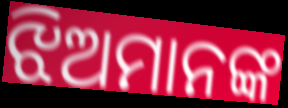
ଝିଅମାନଙ୍କ